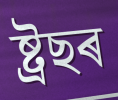
ষ্ট্ৰছৰ